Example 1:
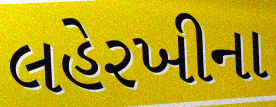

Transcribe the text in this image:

લહેરખીના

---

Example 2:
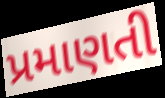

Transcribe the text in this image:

પ્રમાણતી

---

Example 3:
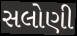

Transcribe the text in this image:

સલોણી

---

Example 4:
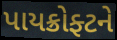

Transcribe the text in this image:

પાયક્રોફ્ટને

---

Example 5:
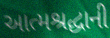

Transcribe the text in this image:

આત્મશ્રદ્ધાની